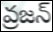
వ్రజన్